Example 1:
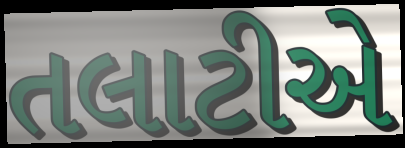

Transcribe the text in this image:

તલાટીએ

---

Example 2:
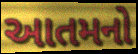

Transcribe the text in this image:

આતમનો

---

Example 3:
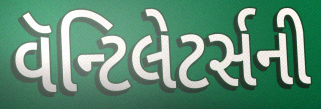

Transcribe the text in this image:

વૅન્ટિલેટર્સની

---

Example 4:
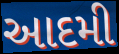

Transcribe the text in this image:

આદમી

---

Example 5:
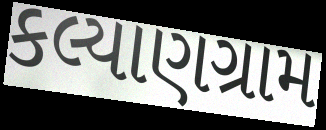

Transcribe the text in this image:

કલ્યાણગ્રામ